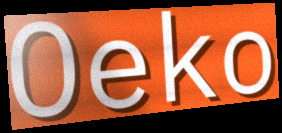
Oeko